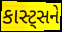
કાસ્ટ્સને